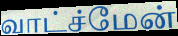
வாட்ச்மேன்